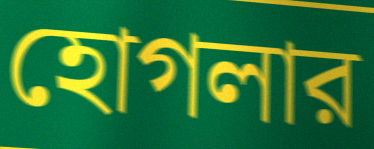
হোগলার